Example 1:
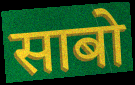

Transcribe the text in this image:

साबो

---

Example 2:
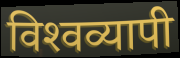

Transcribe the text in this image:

विश्‍वव्यापी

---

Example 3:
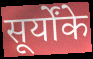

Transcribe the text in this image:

सूर्योंके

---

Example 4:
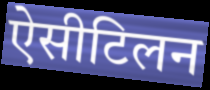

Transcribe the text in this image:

ऐसीटिलन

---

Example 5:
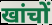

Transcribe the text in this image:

खांचों